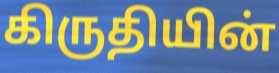
கிருதியின்